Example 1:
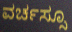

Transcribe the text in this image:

ವರ್ಚಸ್ಸೂ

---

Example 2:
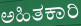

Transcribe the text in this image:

ಅಹಿತಕಾರಿ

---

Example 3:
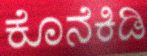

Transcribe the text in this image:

ಕೊನೆಕಿಡಿ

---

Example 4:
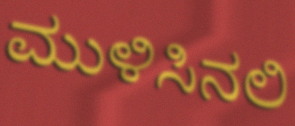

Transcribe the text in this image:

ಮುಳಿಸಿನಲಿ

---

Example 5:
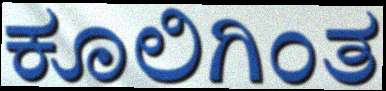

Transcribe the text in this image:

ಕೂಲಿಗಿಂತ